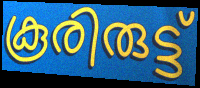
കൂരിരുട്ട്